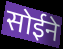
सोईने